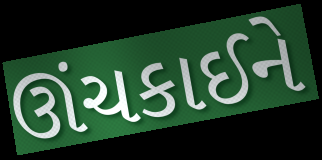
ઊંચકાઈને